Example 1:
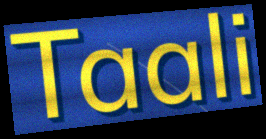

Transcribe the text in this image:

Taali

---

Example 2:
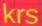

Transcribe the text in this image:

krs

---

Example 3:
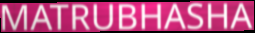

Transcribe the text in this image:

MATRUBHASHA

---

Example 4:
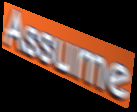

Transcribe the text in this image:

Assume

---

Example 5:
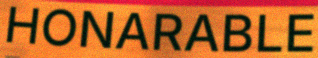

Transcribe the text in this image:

HONARABLE